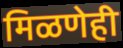
मिळणेही